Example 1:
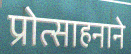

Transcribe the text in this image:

प्रोत्साहनाने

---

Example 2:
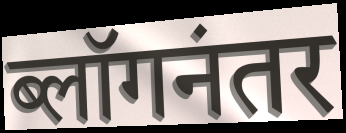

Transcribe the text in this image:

ब्लॉगनंतर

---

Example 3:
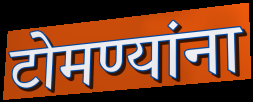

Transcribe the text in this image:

टोमण्यांना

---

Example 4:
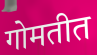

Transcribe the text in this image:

गोमतीत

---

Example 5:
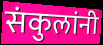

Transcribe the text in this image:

संकुलांनी